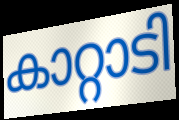
കാറ്റാടി